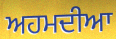
ਅਹਮਦੀਆ